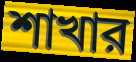
শাখার